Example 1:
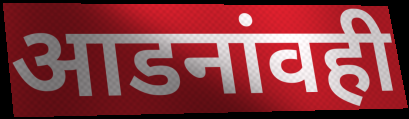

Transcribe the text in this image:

आडनांवही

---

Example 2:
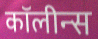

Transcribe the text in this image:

कॉलीन्स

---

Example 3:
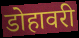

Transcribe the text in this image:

डोहावरी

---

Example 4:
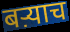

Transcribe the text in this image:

बऱ्‍याच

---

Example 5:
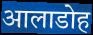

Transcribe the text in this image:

आलाडोह